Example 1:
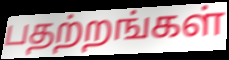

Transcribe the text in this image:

பதற்றங்கள்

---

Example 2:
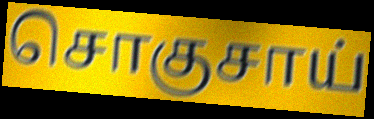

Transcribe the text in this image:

சொகுசாய்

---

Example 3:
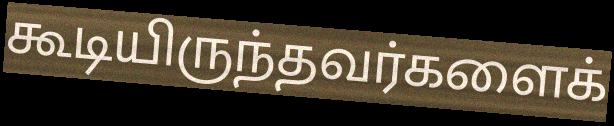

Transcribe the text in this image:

கூடியிருந்தவர்களைக்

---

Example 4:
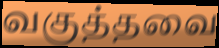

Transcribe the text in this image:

வகுத்தவை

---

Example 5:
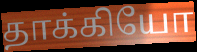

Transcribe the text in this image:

தாக்கியோ